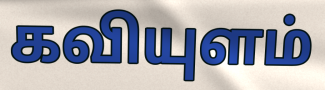
கவியுளம்